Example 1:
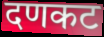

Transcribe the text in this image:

दणकट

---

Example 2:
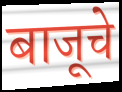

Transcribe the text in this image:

बाजूचे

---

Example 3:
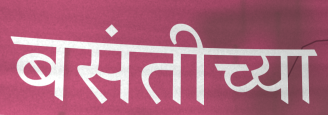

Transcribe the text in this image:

बसंतीच्या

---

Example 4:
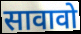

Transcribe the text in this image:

सावावो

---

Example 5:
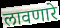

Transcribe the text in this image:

लावणारे